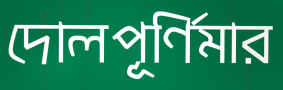
দোলপূর্ণিমার